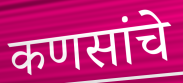
कणसांचे